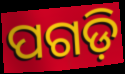
ପଗଡ଼ି